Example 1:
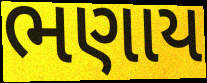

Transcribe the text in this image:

ભણાય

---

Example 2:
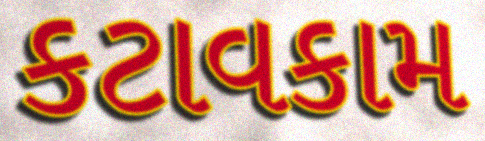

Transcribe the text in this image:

કટાવકામ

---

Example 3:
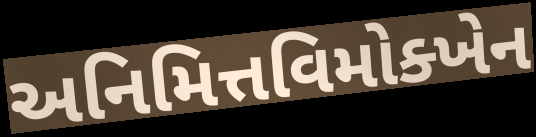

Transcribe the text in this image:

અનિમિત્તવિમોક્ખેન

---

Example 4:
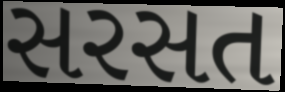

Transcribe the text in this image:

સરસત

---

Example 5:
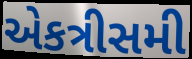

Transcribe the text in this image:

એકત્રીસમી